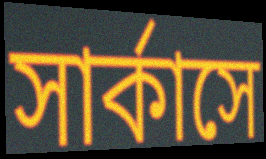
সার্কাসে